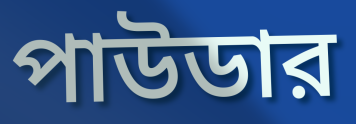
পাউডার